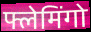
फ्लेमिंगो